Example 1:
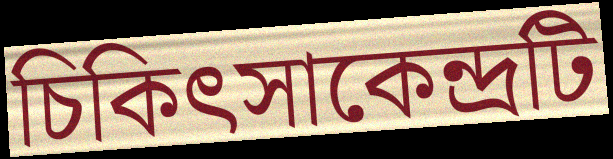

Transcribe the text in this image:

চিকিৎসাকেন্দ্রটি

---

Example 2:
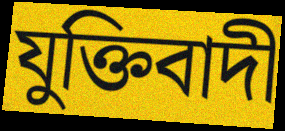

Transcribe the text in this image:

যুক্তিবাদী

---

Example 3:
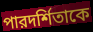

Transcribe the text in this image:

পারদর্শিতাকে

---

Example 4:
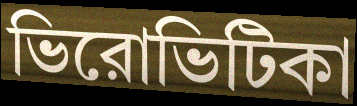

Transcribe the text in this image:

ভিরোভিটিকা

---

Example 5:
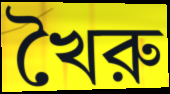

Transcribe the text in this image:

খৈরু